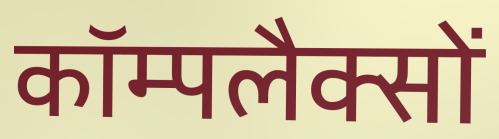
कॉम्पलैक्सों